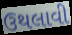
ઉથલાવી